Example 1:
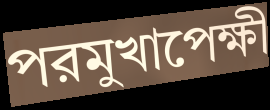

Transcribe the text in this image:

পরমুখাপেক্ষী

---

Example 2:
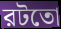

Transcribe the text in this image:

রটতো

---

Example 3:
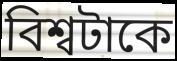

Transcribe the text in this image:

বিশ্বটাকে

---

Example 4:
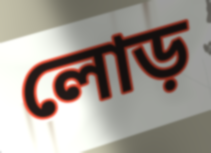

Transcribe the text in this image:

লোড়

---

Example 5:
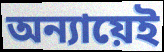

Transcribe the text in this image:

অন্যায়েই